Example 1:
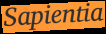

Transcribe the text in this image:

Sapientia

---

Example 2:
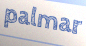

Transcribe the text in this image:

palmar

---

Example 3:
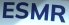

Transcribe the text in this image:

ESMR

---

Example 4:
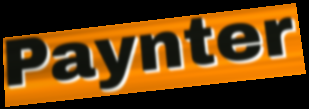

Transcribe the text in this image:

Paynter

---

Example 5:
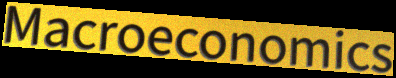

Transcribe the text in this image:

Macroeconomics